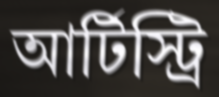
আর্টিস্ট্রি